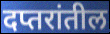
दप्तरांतील